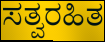
ಸತ್ವರಹಿತ